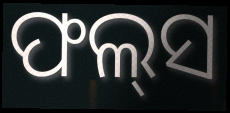
ଫଲ୍‍ସ